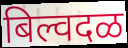
बिल्वदळ